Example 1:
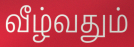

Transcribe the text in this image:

வீழ்வதும்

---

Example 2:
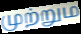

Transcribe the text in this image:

முற்றும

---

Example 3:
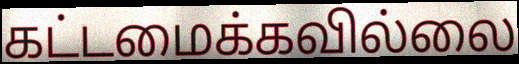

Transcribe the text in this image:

கட்டமைக்கவில்லை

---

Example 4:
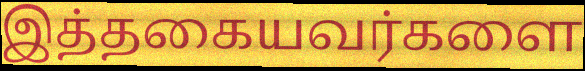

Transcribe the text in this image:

இத்தகையவர்களை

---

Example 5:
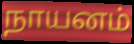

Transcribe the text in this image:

நாயனம்